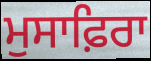
ਮੁਸਾਫ਼ਿਰਾ